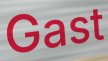
Gast